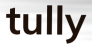
tully